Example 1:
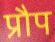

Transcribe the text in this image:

प्रौप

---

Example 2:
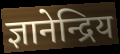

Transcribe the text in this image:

ज्ञानेन्द्रिय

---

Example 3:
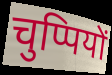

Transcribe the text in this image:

चुप्पियों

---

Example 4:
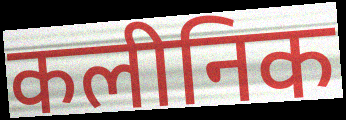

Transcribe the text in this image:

कलीनिक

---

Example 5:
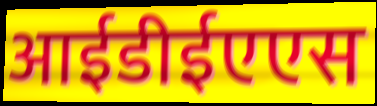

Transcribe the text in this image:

आईडीईएएस